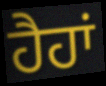
ਹੈਹਾਂ